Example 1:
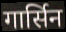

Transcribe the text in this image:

गार्सिन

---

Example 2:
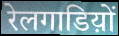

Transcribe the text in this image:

रेलगाडिय़ों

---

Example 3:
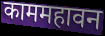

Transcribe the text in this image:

काममहावन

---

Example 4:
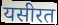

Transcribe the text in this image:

यसीरत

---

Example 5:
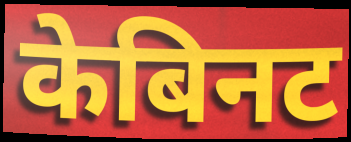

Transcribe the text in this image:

केबिनट